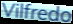
Vilfredo